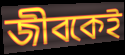
জীবকেই